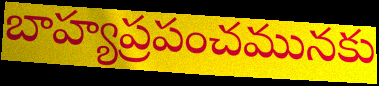
బాహ్యప్రపంచమునకు